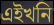
এইখনি